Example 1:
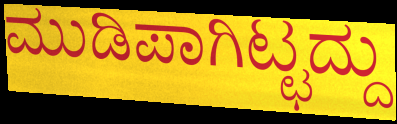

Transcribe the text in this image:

ಮುಡಿಪಾಗಿಟ್ಟದ್ದು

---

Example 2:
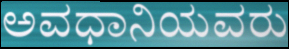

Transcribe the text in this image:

ಅವಧಾನಿಯವರು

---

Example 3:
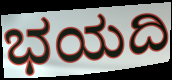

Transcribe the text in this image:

ಭಯದಿ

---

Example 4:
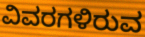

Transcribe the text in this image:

ವಿವರಗಳಿರುವ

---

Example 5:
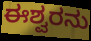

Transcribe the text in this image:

ಈಶ್ವರನು